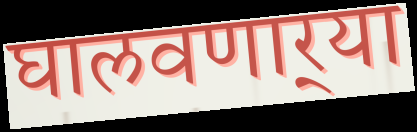
घालवणार्या